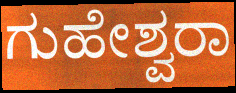
ಗುಹೇಶ್ವರಾ